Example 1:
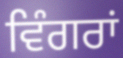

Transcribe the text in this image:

ਵਿੰਗਰਾਂ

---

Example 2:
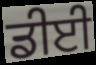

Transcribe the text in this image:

ਡੀਈ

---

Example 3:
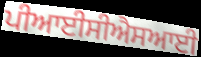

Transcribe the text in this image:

ਪੀਆਈਸੀਐਸਆਈ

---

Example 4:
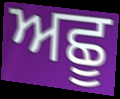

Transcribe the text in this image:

ਅਛੂ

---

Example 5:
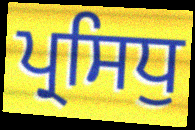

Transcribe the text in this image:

ਪ੍ਰਸਿਧੁ